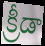
క్రీడా